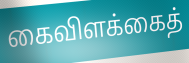
கைவிளக்கைத்